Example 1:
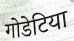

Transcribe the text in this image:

गोडेटिया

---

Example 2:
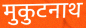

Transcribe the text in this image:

मुकुटनाथ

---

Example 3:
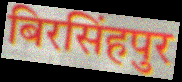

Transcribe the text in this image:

बिरसिंहपुर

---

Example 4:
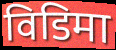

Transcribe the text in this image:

विडिमा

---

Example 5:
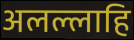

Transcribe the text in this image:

अलल्लाहि